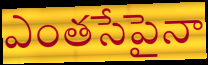
ఎంతసేపైనా